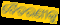
ବୈତରଣୀକୁ